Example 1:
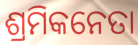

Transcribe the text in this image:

ଶ୍ରମିକନେତା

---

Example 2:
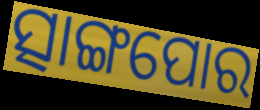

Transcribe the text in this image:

ତ୍ସାଙ୍ଗପୋର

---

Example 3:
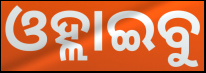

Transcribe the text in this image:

ଓହ୍ଲାଇବୁ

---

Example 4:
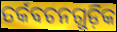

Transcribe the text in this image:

ତର୍କବଚନଗୁଡ଼ିକ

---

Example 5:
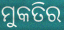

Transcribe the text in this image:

ମୁକତିର